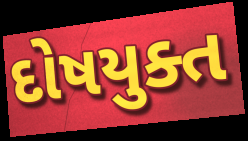
દોષયુક્ત